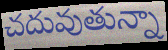
చదువుతున్నా